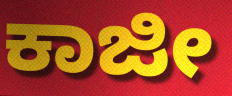
ಕಾಜೀ